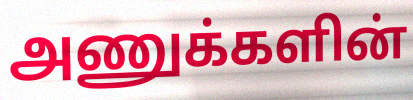
அணுக்களின்